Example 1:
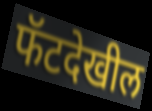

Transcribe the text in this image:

फॅटदेखील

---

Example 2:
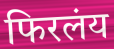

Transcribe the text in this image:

फिरलंय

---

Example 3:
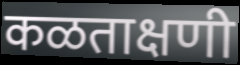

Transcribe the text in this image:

कळताक्षणी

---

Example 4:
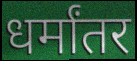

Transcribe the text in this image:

धर्मांतर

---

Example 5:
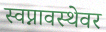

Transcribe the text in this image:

स्वप्नावस्थेवर